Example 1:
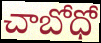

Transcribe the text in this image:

చాబోధో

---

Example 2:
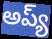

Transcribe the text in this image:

అప్య్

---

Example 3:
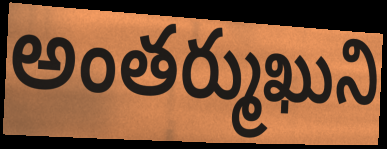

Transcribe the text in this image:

అంతర్ముఖుని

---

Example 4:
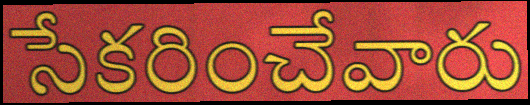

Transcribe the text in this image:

సేకరించేవారు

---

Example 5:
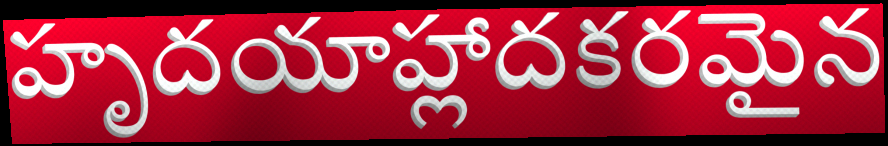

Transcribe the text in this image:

హృదయాహ్లాదకరమైన